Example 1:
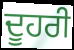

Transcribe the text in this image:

ਦੂਹਰੀ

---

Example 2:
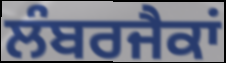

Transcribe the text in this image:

ਲੰਬਰਜੈਕਾਂ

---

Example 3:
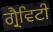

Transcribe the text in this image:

ਗ੍ਰੈਵਿਟੀ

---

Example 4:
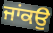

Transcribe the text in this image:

ਜਾਂਕਉ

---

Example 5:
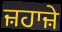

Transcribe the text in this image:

ਜ਼ਹਾਜ਼ੇ